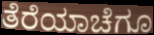
ತೆರೆಯಾಚೆಗೂ